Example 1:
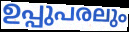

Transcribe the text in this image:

ഉപ്പുപരലും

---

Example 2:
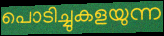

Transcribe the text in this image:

പൊടിച്ചുകളയുന്ന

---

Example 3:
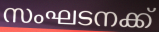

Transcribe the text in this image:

സംഘടനക്ക്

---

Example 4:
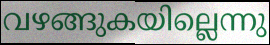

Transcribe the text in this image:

വഴങ്ങുകയില്ലെന്നു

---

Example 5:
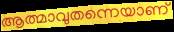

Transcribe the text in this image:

ആത്മാവുതന്നെയാണ്